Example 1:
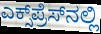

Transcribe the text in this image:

ಎಕ್ಸ್‌ಪ್ರೆಸ್‌ನಲ್ಲಿ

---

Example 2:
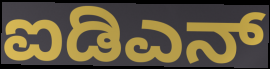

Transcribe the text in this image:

ಐಡಿಎನ್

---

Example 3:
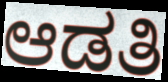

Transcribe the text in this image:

ಆಡತಿ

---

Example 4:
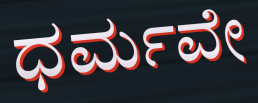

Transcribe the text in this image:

ಧರ್ಮವೇ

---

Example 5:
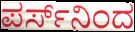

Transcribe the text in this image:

ಪರ್ಸ್‌ನಿಂದ